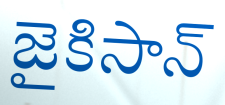
జైకిసాన్